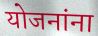
योजनांना